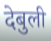
देबुली